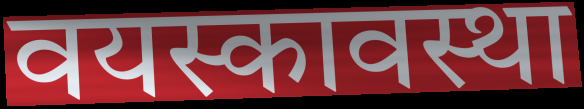
वयस्कावस्था